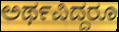
ಅರ್ಥವಿದ್ದರೂ